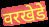
वरखेडे